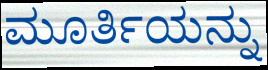
ಮೂರ್ತಿಯನ್ನು